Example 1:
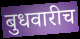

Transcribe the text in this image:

बुधवारीच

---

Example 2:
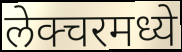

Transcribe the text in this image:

लेक्चरमध्ये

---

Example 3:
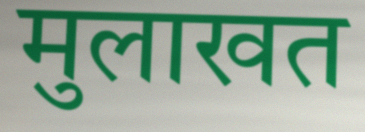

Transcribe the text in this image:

मुलाखत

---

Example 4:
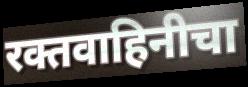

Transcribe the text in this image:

रक्तवाहिनीचा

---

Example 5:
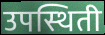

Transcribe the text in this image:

उपस्थिती